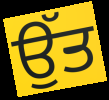
ਉੱਤ